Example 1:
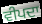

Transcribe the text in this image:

ਵੀਪਦਾ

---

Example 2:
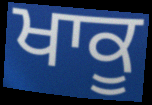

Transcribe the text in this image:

ਖਾਕੂ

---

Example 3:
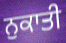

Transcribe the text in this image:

ਨੁਕਾਤੀ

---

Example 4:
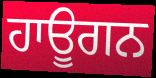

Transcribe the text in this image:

ਹਾਊਗਨ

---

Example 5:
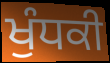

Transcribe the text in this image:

ਖੁੰਧਕੀ